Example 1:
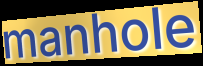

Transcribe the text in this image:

manhole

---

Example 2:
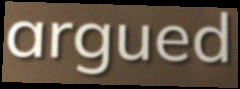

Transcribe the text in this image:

argued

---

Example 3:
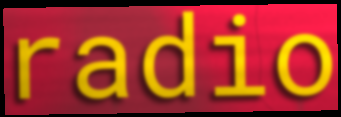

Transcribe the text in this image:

radio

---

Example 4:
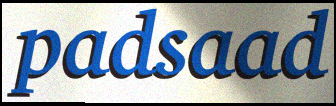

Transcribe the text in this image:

padsaad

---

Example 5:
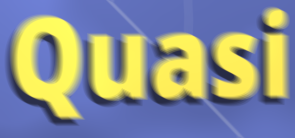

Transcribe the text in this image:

Quasi